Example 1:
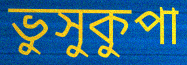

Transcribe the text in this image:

ভুসুকুপা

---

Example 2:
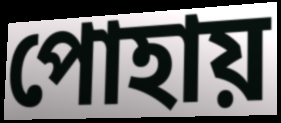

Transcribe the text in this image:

পোহায়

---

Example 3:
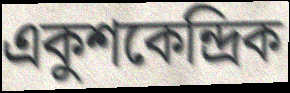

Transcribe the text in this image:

একুশকেন্দ্রিক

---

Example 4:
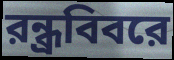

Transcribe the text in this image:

রন্ধ্রবিবরে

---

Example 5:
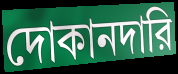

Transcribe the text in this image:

দোকানদারি